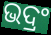
ଭଦ୍ରଂ